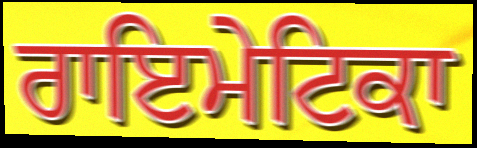
ਰਾਇਮੇਟਿਕਾ